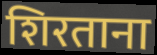
शिरताना